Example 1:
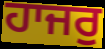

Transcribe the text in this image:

ਹਾਜਰੁ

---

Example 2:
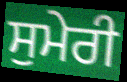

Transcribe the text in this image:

ਸੁਮੇਰੀ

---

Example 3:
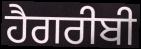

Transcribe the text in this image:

ਹੈਗਰੀਬੀ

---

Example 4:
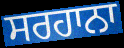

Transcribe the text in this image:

ਸਰਹਾਨਾ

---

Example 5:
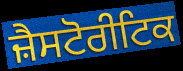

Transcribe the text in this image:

ਜ਼ੈਸਟੋਰੀਟਿਕ